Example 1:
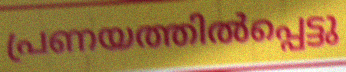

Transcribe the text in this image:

പ്രണയത്തിൽപ്പെട്ടു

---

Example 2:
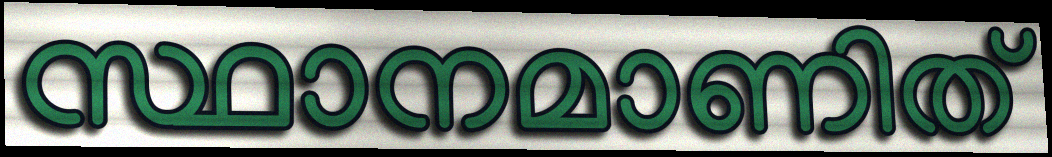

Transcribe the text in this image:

സ്ഥാനമാണിത്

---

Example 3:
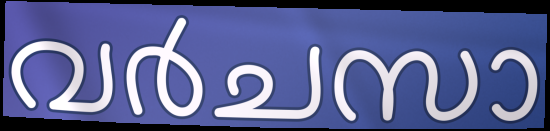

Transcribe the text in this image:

വർചസാ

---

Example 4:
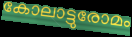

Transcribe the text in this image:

കോലാട്ടുരോമം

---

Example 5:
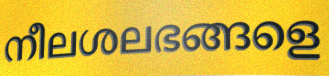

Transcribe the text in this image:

നീലശലഭങ്ങളെ